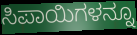
ಸಿಪಾಯಿಗಳನ್ನೂ